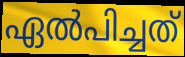
ഏൽപിച്ചത്